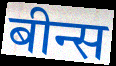
बीन्स